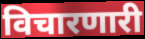
विचारणारी